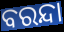
ବରନ୍ଦା